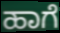
ಹಾಗೆ